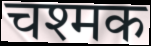
चश्मक